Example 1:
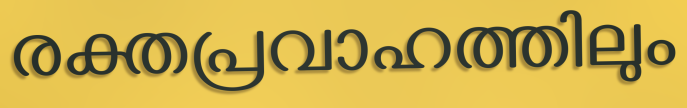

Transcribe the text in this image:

രക്തപ്രവാഹത്തിലും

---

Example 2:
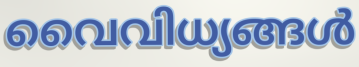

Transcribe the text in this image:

വൈവിധ്യങ്ങൾ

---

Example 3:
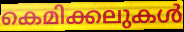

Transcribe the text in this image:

കെമിക്കലുകൾ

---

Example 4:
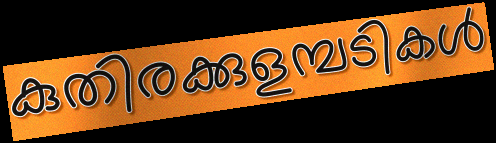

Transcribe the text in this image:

കുതിരക്കുളമ്പടികൾ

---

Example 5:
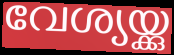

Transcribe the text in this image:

വേശ്യയ്ക്കു